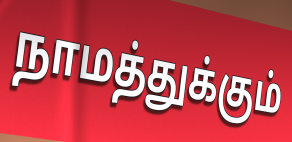
நாமத்துக்கும்